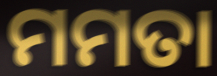
ମମତା